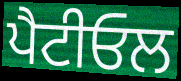
ਪੈਟੀਓਲ